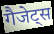
गैजेट्स